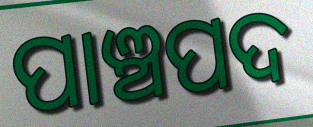
ପାଞ୍ଚପଦ